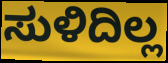
ಸುಳಿದಿಲ್ಲ